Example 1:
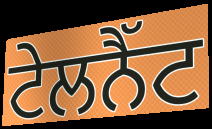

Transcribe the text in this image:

ਟੇਲਨੈੱਟ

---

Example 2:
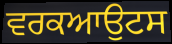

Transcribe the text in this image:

ਵਰਕਆਉਟਸ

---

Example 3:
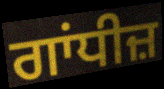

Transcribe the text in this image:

ਗਾਂਧੀਜ਼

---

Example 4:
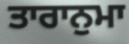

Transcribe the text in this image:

ਤਾਰਾਨੁਮਾ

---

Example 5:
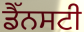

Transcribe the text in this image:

ਡੈੱਨਸਟੀ